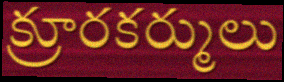
క్రూరకర్ములు